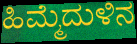
ಹಿಮ್ಮೆದುಳಿನ